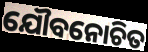
ଯୌବନୋଚିତ